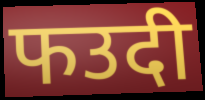
फउदी